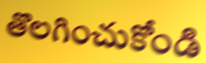
తొలగించుకోండి